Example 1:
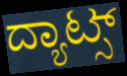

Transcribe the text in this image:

ದ್ಯಾಟ್ಸ್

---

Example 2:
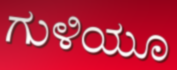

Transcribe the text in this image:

ಗುಳಿಯೂ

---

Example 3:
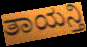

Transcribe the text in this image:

ತಾಯನ್ತಿ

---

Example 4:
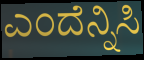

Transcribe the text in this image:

ಎಂದೆನ್ನಿಸಿ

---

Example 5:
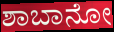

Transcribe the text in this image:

ಶಾಬಾನೋ